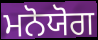
ਮਨੋਯੋਗ